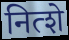
नित्शे